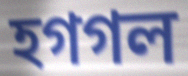
হগগল